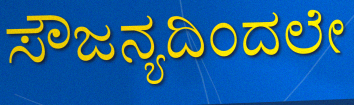
ಸೌಜನ್ಯದಿಂದಲೇ